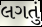
લગતું